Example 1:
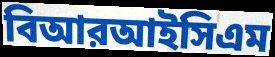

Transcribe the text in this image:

বিআরআইসিএম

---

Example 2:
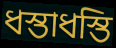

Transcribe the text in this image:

ধস্তাধস্তি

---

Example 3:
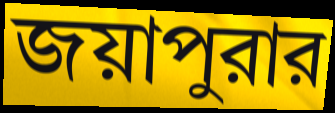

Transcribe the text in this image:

জয়াপুরার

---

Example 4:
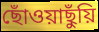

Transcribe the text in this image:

ছোঁওয়াছুঁয়ি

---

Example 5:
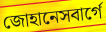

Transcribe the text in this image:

জোহানেসবার্গে